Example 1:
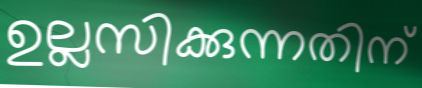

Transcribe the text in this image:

ഉല്ലസിക്കുന്നതിന്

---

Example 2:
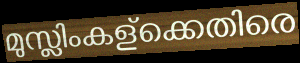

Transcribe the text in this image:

മുസ്ലിംകള്ക്കെതിരെ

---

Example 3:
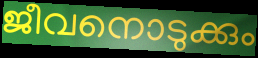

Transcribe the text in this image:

ജീവനൊടുക്കും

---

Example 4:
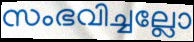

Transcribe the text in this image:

സംഭവിച്ചല്ലോ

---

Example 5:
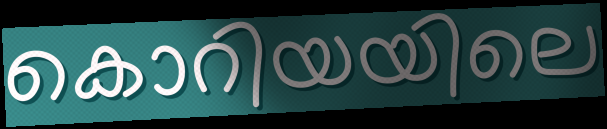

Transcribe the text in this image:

കൊറിയയിലെ